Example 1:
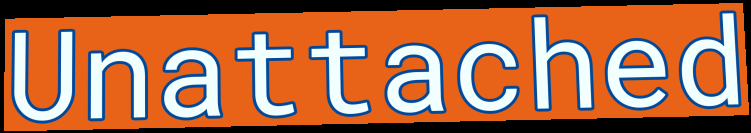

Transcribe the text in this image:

Unattached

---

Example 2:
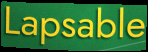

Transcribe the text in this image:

Lapsable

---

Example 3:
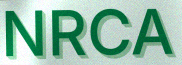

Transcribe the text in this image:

NRCA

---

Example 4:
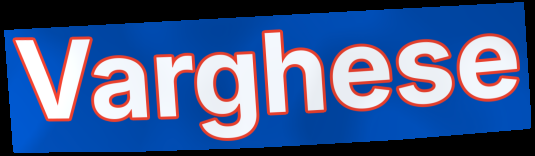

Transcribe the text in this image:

Varghese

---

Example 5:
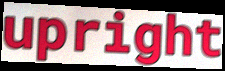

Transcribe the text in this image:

upright